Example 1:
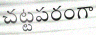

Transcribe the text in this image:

చట్టపరంగా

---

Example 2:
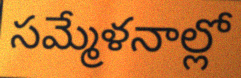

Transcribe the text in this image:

సమ్మేళనాల్లో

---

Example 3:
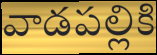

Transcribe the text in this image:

వాడపల్లికి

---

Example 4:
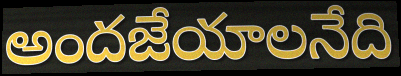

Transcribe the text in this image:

అందజేయాలనేది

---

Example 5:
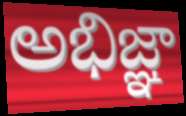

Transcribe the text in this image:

అభిజ్ఞా